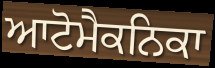
ਆਟੋਮੈਕਨਿਕਾ